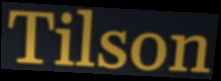
Tilson